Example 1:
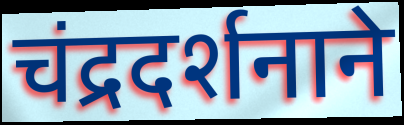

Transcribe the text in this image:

चंद्रदर्शनाने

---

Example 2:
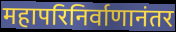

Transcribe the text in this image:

महापरिनिर्वाणानंतर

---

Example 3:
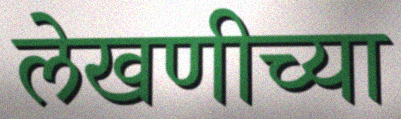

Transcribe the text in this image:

लेखणीच्या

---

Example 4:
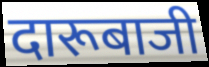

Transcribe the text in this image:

दारूबाजी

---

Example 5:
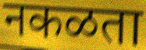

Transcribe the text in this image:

नकळता